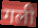
गली